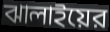
ঝালাইয়ের